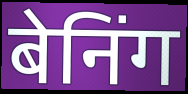
बेनिंग